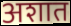
अशात